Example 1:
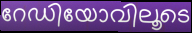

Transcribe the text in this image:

റേഡിയോവിലൂടെ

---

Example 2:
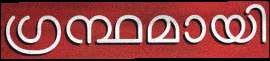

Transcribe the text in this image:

ഗ്രന്ഥമായി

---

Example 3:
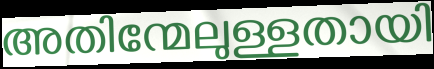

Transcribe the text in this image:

അതിന്മേലുള്ളതായി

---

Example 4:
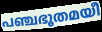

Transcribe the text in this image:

പഞ്ചഭൂതമയീ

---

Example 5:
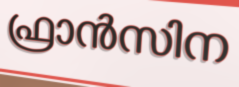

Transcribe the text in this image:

ഫ്രാൻസിന